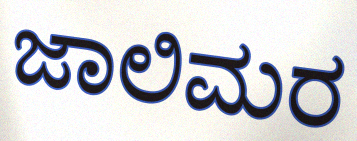
ಜಾಲಿಮರ